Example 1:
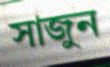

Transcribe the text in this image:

সাজুন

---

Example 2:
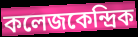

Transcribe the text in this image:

কলেজকেন্দ্রিক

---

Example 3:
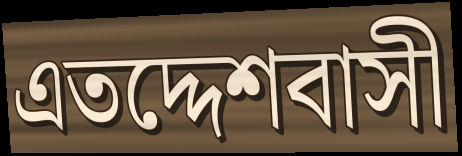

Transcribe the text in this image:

এতদ্দেশবাসী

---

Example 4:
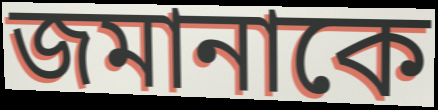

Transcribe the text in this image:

জমানাকে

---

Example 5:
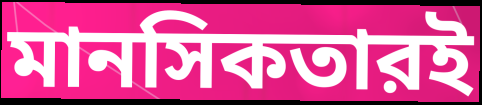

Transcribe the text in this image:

মানসিকতারই